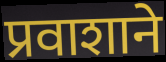
प्रवाशाने